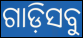
ଗାଡ଼ିସବୁ